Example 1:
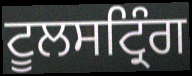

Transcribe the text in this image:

ਟੂਲਸਟ੍ਰਿੰਗ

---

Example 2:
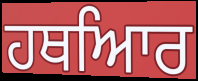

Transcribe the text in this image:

ਹਥਆਿਰ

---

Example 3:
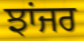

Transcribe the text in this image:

ਝਾਂਜਰ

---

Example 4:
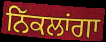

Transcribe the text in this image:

ਨਿੱਕਲਾਂਗਾ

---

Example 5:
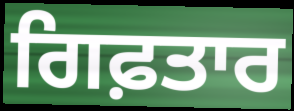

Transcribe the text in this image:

ਗਿਫ਼ਤਾਰ